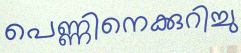
പെണ്ണിനെക്കുറിച്ചു